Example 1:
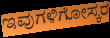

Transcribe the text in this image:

ಇವುಗಳಿಗೋಸ್ಕರ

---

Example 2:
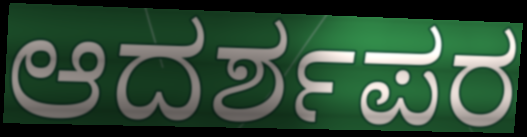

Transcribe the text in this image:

ಆದರ್ಶಪರ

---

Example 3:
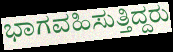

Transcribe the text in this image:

ಭಾಗವಹಿಸುತ್ತಿದ್ದರು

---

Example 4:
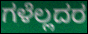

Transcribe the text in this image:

ಗಳೆಲ್ಲದರ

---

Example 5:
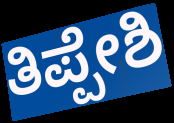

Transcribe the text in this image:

ತಿಪ್ಪೇಶಿ